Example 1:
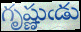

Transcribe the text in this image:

గృష్ణుఁడు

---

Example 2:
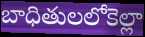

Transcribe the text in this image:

బాధితులలోకెల్లా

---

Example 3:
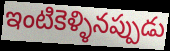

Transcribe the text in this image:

ఇంటికెళ్ళినప్పుడు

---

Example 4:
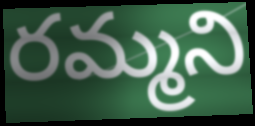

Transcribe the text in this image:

రమ్మని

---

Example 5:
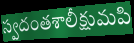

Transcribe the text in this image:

స్వదంతశాలీక్షుమపి